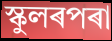
স্কুলৰপৰা